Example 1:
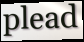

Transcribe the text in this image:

plead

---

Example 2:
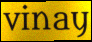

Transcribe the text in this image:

vinay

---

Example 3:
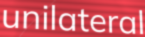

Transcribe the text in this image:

unilateral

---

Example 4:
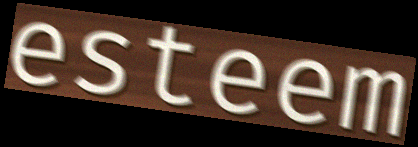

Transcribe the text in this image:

esteem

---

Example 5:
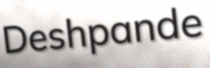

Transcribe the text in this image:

Deshpande